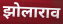
झोलाराव